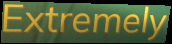
Extremely